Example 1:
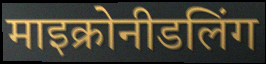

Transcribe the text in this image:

माइक्रोनीडलिंग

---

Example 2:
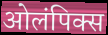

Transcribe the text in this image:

ओलंपिक्स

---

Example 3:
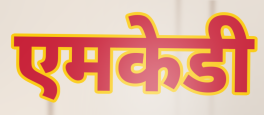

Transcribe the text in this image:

एमकेडी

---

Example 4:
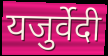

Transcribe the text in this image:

यजुर्वेदी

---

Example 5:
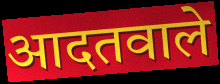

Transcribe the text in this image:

आदतवाले